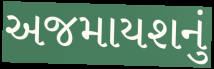
અજમાયશનું